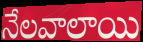
నేలవాలాయి